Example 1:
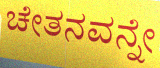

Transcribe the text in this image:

ಚೇತನವನ್ನೇ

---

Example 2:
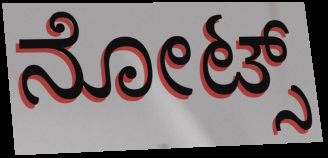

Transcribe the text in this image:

ನೋಟ್ಸ್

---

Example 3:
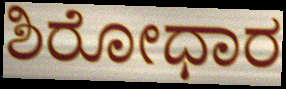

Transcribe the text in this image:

ಶಿರೋಧಾರ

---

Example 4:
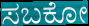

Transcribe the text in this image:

ಸಬಕೋ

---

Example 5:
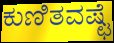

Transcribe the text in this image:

ಕುಣಿತವಷ್ಟೆ